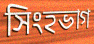
সিংহভাগ